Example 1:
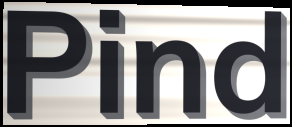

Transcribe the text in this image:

Pind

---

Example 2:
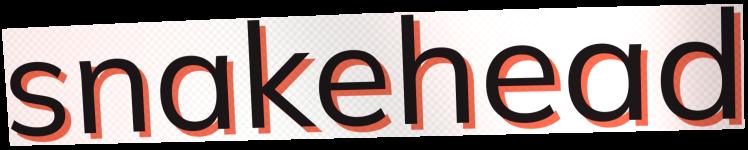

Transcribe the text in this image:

snakehead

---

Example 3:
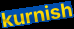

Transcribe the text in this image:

kurnish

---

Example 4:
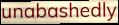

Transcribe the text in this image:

unabashedly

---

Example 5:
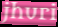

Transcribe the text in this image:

jhuri